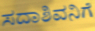
ಸದಾಶಿವನಿಗೆ